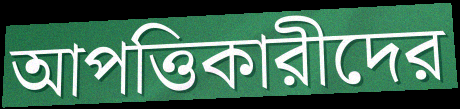
আপত্তিকারীদের